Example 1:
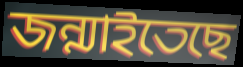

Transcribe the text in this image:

জন্মাইতেছে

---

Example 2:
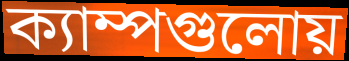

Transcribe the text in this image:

ক্যাম্পগুলোয়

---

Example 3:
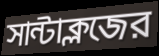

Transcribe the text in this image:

সান্টাক্লজের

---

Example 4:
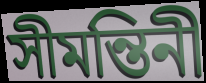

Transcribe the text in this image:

সীমন্তিনী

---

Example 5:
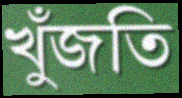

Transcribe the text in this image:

খুঁজতি